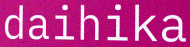
daihika